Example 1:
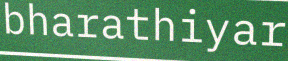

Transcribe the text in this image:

bharathiyar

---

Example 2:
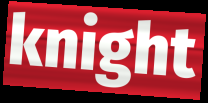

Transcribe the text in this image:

knight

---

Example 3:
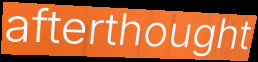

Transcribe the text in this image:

afterthought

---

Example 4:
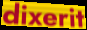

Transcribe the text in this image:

dixerit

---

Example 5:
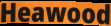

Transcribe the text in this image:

Heawood